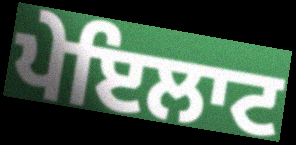
ਪੇਇਲਾਟ